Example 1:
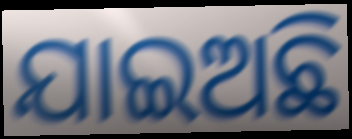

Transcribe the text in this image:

ଯାଇଅଛି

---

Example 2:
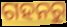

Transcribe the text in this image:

ଗହନରୁ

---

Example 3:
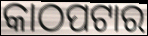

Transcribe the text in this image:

କାଠପଟାର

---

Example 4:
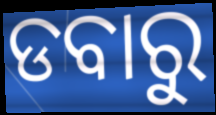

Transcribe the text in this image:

ଡବାରୁ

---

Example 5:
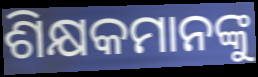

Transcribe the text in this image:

ଶିକ୍ଷକମାନଙ୍କୁ